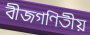
বীজগণিতীয়